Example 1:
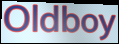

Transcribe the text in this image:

Oldboy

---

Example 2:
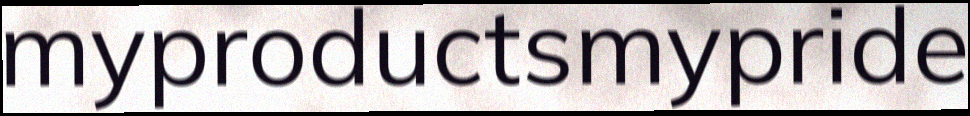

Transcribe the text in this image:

myproductsmypride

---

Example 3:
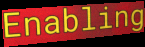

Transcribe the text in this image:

Enabling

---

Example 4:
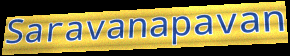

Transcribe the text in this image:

Saravanapavan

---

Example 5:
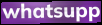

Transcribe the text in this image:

whatsupp